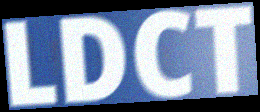
LDCT